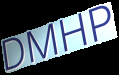
DMHP